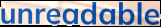
unreadable